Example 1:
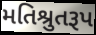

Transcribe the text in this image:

મતિશ્રુતરૂપ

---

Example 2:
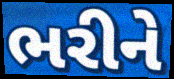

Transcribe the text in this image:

ભરીને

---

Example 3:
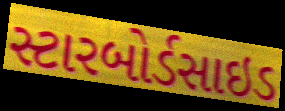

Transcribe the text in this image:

સ્ટારબોર્ડસાઇડ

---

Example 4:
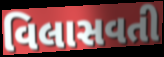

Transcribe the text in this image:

વિલાસવતી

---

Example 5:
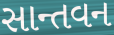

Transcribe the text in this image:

સાન્તવન